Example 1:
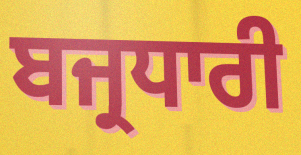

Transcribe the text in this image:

ਬਜ੍ਰਧਾਰੀ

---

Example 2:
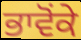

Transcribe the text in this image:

ਭਾਵੋਂਕੇ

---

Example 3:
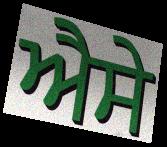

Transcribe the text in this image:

ਐੇਸੇ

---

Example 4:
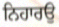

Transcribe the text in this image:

ਨਿਹਾਰਉ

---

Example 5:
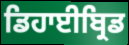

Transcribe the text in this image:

ਡਿਹਾਈਬ੍ਰਿਡ